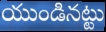
యుండినట్టు